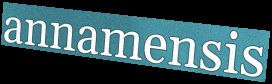
annamensis